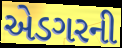
એડગરની